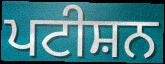
ਪਟੀਸ਼ਨ